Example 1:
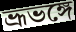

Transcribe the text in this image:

ভ্রূভঙ্গে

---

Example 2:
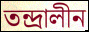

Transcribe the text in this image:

তন্দ্রালীন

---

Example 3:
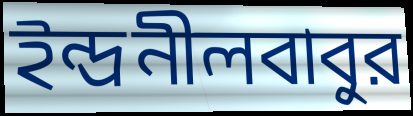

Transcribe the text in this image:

ইন্দ্রনীলবাবুর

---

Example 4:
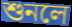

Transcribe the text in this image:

শুনলে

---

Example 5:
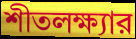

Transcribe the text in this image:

শীতলক্ষ্যার